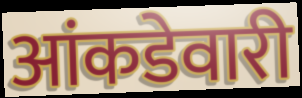
आंकडेवारी